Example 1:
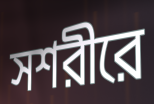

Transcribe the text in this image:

সশরীরে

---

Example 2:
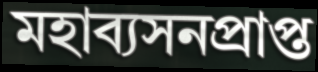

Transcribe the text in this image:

মহাব্যসনপ্রাপ্ত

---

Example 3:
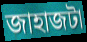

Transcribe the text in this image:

জাহাজটা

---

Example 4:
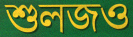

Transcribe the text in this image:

শুলজও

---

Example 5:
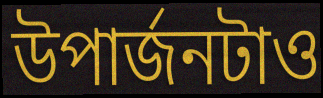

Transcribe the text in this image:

উপার্জনটাও